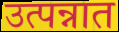
उत्पन्नात